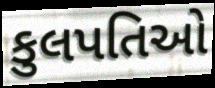
કુલપતિઓ